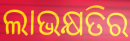
ଲାଭକ୍ଷତିର